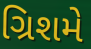
ગ્રિશમે